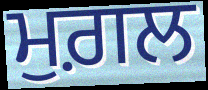
ਮੁਗ਼ਲ